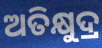
ଅତିକ୍ଷୁଦ୍ର